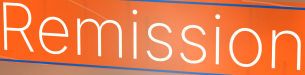
Remission